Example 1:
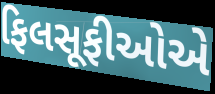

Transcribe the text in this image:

ફિલસૂફીઓએ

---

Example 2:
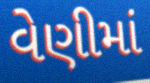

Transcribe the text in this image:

વેણીમાં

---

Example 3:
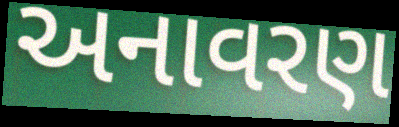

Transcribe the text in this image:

અનાવરણ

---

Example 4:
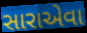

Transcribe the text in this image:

સારાએવા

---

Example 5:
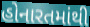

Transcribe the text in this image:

હોનારતમાંથી